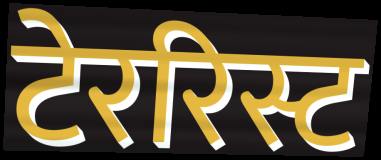
टेररिस्ट